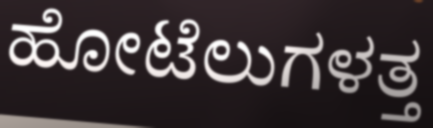
ಹೋಟೆಲುಗಳತ್ತ